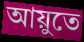
আয়ুতে